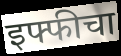
इफ्फीचा